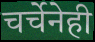
चर्चेनेही